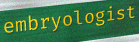
embryologist